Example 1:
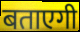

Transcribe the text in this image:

बताएगी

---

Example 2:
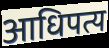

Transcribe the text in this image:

आधिपत्य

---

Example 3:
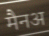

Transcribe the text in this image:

मैनअ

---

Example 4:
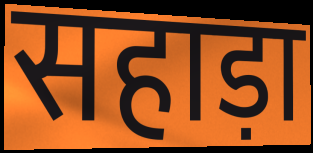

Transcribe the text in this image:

सहाड़ा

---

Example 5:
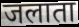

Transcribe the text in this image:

जलाता